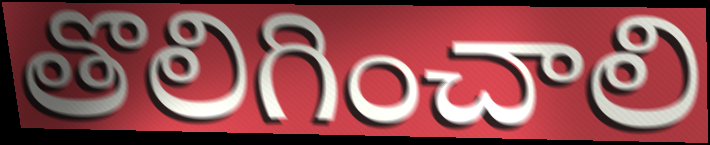
తొలిగించాలి